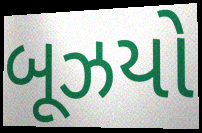
બૂઝયો